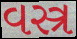
વસ્ત્ર